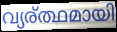
വ്യര്ത്ഥമായി